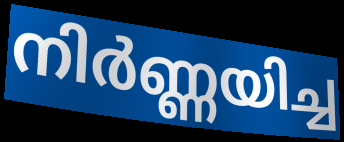
നിർണ്ണയിച്ച